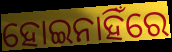
ହୋଇନାହିଁରେ